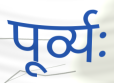
पूर्व्यः